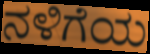
ನಳಿಗೆಯ